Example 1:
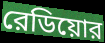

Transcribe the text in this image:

রেডিয়োর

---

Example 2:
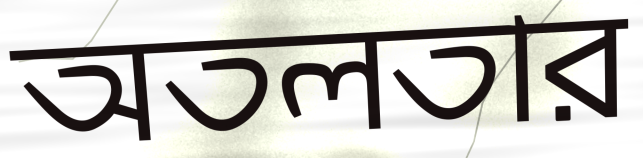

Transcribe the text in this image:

অতলতার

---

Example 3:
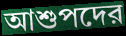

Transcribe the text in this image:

আশুপদের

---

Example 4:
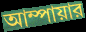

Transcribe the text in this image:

আম্পায়ার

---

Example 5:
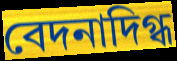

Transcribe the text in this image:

বেদনাদিগ্ধ